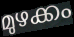
മുഴക്കം